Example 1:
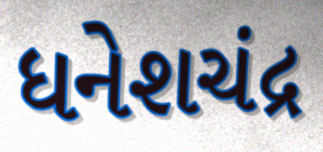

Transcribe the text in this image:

ધનેશચંદ્ર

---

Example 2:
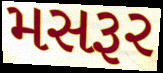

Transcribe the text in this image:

મસરૂર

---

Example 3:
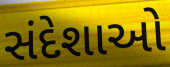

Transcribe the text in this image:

સંદેશાઓ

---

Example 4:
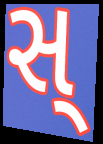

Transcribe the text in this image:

સ્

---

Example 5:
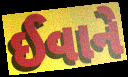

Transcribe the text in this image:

ઈવાને